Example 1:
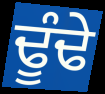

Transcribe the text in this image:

ਢੂੰਢੇ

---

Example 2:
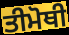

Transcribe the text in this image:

ਤੀਮੋਥੀ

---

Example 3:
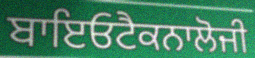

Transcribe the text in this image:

ਬਾਇਓਟੈਕਨਾਲੋਜੀ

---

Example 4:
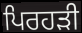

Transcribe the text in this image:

ਪਿਰਹੜੀ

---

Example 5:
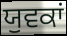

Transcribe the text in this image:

ਯੁਵਕਾਂ